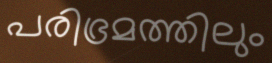
പരിഭ്രമത്തിലും